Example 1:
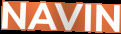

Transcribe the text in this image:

NAVIN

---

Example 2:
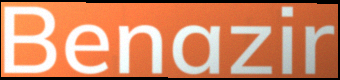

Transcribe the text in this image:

Benazir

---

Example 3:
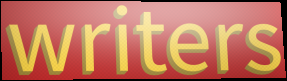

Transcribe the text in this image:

writers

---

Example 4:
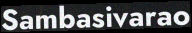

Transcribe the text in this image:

Sambasivarao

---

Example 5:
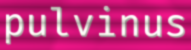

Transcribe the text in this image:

pulvinus